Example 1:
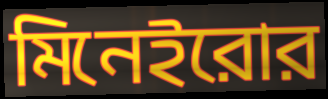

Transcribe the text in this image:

মিনেইরোর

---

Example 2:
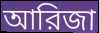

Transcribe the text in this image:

আরিজা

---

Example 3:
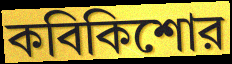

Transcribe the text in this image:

কবিকিশোর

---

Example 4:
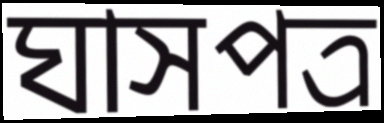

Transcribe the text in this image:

ঘাসপত্র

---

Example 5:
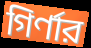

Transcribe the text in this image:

গির্ণার